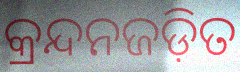
କ୍ରନ୍ଦନଜଡ଼ିତ